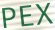
PEX